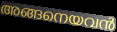
അങ്ങനെയവൻ